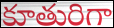
కూతురిగా